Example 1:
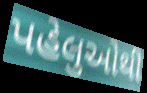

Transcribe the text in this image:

પહેલુઓથી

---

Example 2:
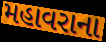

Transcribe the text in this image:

મહાવરાના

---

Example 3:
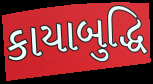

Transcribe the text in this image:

કાયાબુદ્ધિ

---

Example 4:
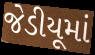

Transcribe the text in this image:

જેડીયૂમાં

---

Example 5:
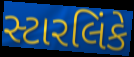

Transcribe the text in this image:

સ્ટારલિંકે